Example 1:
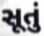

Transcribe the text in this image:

સૂતું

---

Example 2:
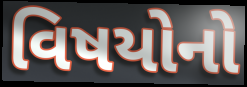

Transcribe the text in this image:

વિષયોનો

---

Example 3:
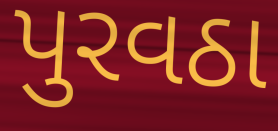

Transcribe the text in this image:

પુરવઠા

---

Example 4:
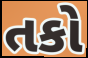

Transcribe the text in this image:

તકો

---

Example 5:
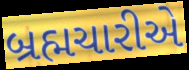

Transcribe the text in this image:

બ્રહ્મચારીએ